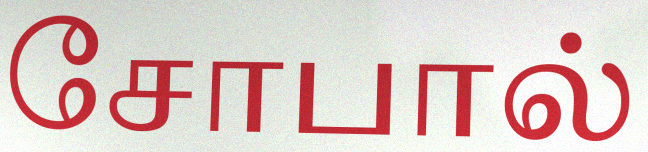
சோபால்